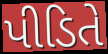
પીડિતે